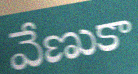
వేణుకా